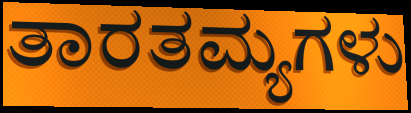
ತಾರತಮ್ಯಗಳು